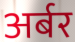
अर्बर